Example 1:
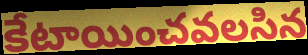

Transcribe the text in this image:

కేటాయించవలసిన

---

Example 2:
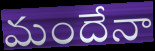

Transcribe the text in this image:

మందేనా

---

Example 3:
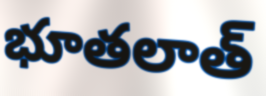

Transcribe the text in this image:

భూతలాత్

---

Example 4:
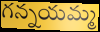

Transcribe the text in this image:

గన్నయమ్మ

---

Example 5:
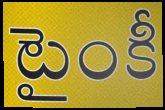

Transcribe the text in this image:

టైంకీ